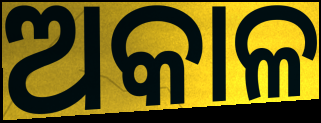
ଅକାଳ